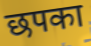
छपका